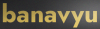
banavyu